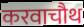
करवाचौथ